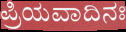
ಪ್ರಿಯವಾದಿನಃ